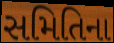
સમિતિના